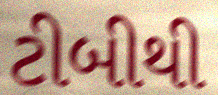
ટીબીથી